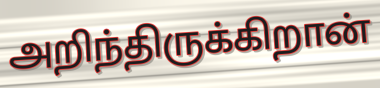
அறிந்திருக்கிறான்